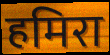
हमिरा